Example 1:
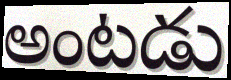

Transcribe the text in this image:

అంటడు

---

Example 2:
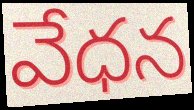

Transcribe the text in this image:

వేధన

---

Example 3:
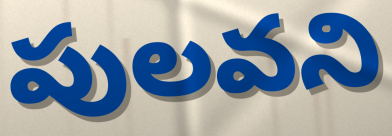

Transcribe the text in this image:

పులవని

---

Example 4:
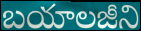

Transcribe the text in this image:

బయాలజీని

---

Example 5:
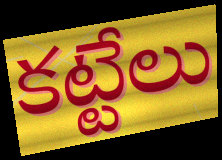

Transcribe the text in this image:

కట్టేలు